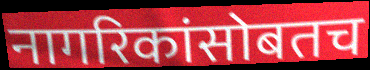
नागरिकांसोबतच